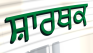
ਸ਼ਾਰਥਕ